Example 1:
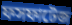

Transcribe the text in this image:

ফসফাটেজ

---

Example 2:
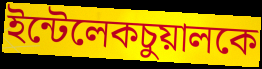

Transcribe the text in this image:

ইন্টেলেকচুয়ালকে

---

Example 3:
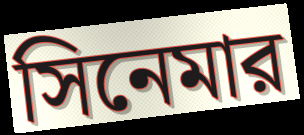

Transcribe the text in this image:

সিনেমার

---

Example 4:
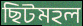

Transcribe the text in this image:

ছিটমহল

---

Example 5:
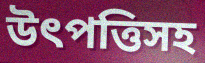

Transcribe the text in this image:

উৎপত্তিসহ